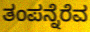
ತಂಪನ್ನೆರೆವ